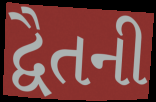
દ્વૈતની